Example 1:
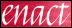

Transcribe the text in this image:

enact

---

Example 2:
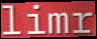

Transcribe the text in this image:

limr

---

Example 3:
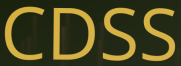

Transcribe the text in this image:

CDSS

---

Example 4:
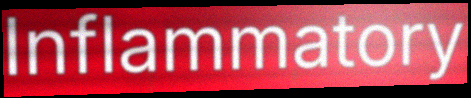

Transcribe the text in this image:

Inflammatory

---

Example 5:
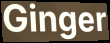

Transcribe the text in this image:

Ginger